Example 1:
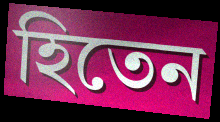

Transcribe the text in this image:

হিতেন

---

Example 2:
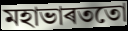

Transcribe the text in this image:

মহাভাৰততো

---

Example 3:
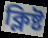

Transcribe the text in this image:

ক্লিষ্ট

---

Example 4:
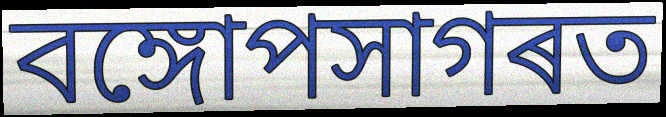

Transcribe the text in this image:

বঙ্গোপসাগৰত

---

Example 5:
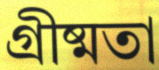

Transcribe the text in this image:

গ্ৰীষ্মতা